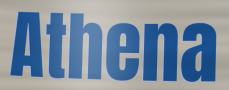
Athena